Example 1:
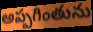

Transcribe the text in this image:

అప్పగింతును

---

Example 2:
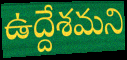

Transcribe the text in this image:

ఉద్దేశమని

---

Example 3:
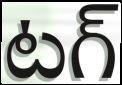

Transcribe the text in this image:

టగ్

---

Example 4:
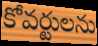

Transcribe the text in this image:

కోవర్టులను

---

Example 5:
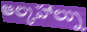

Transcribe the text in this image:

ఆల్కహాల్ను